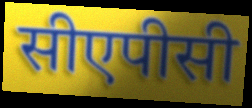
सीएपीसी